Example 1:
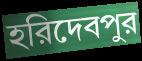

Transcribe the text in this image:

হরিদেবপুর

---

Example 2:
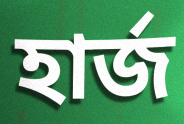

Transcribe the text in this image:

হার্জ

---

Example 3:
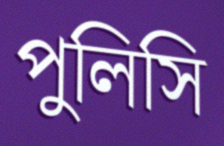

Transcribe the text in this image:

পুলিসি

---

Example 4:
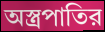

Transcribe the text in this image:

অস্ত্রপাতির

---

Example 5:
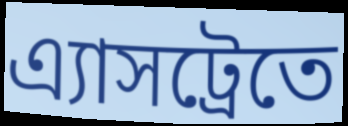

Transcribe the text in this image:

এ্যাসট্রেতে